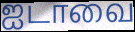
ஐடாவை